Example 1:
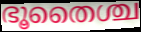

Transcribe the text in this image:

ഭൂതൈശ്ച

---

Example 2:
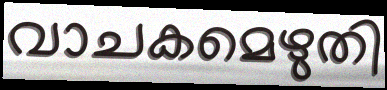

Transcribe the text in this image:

വാചകമെഴുതി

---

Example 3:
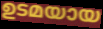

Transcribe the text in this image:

ഉടമയായ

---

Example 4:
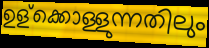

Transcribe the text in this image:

ഉള്ക്കൊള്ളുന്നതിലും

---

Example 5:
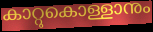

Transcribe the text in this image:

കാറ്റുകൊള്ളാനും